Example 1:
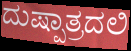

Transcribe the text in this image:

ದುಷ್ಪಾತ್ರದಲಿ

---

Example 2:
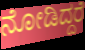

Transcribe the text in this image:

ನೋಡಿದ್ದರೆ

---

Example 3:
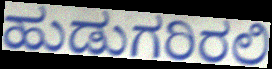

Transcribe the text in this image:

ಹುಡುಗರಿರಲಿ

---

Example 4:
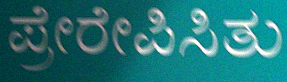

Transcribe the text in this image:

ಪ್ರೇರೇಪಿಸಿತು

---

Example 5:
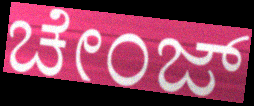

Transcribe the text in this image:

ಚೇಂಜ್